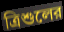
ত্রিশুলের